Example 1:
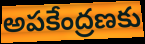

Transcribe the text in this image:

అపకేంద్రణకు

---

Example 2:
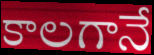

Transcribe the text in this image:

కాలగానే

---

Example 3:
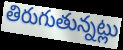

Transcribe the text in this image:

తిరుగుతున్నట్లు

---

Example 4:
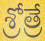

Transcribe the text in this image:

శ్రోత్రే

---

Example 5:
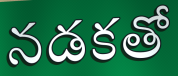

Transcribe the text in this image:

నడకతో